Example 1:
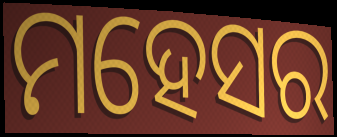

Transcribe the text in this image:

ମହେସର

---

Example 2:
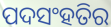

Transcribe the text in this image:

ପଦସଂହତିର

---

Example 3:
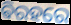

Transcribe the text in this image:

ଵିରହରେ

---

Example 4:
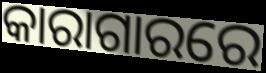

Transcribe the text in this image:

କାରାଗାରରେ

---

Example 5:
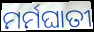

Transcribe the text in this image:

ମର୍ମଘାତୀ